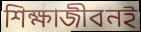
শিক্ষাজীবনই